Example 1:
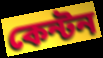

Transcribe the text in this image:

কেন্টন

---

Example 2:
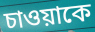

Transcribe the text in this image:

চাওয়াকে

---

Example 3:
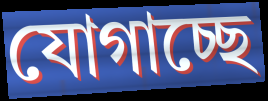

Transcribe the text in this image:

যোগাচ্ছে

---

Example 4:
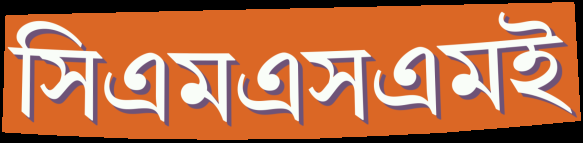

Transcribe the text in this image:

সিএমএসএমই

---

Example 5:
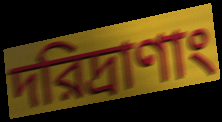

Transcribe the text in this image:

দরিদ্রাণাং